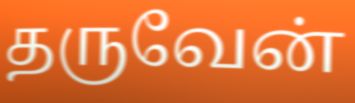
தருவேன்